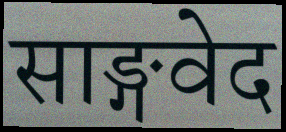
साङ्गवेद